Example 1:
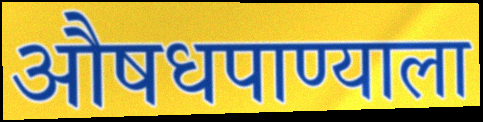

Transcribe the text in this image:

औषधपाण्याला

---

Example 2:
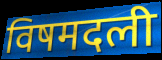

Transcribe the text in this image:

विषमदली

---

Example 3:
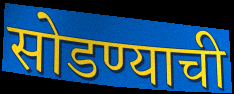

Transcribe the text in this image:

सोडण्याची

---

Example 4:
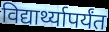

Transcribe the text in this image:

विद्यार्थ्यापर्यंत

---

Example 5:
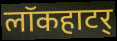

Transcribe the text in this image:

लॉकहाटर्